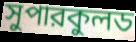
সুপারকুলড